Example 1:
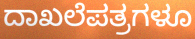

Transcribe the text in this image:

ದಾಖಲೆಪತ್ರಗಳೂ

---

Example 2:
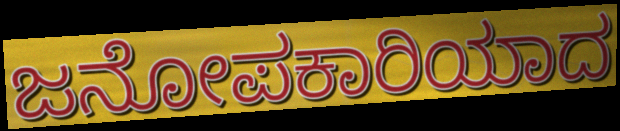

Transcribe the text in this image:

ಜನೋಪಕಾರಿಯಾದ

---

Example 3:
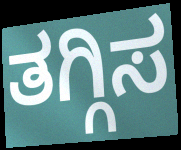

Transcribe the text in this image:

ತಗ್ಗಿಸ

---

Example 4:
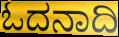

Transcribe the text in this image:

ಓದನಾದಿ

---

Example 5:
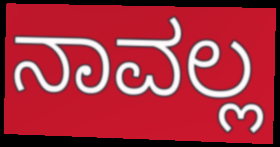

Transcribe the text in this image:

ನಾವಲ್ಲ